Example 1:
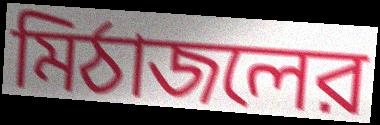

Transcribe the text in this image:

মিঠাজলের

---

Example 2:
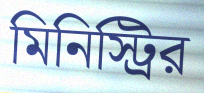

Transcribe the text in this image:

মিনিস্ট্রির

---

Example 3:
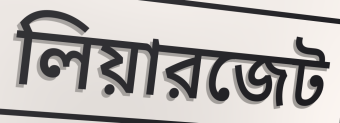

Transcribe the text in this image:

লিয়ারজেট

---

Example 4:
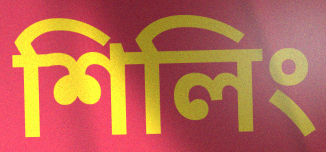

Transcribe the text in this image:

শিলিং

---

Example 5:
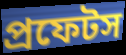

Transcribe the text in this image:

প্রফেটস